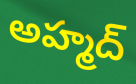
అహ్మద్